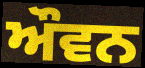
ਔਵਨ